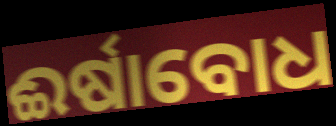
ଈର୍ଷାବୋଧ